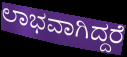
ಲಾಭವಾಗಿದ್ದರೆ